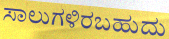
ಸಾಲುಗಳಿರಬಹುದು